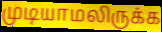
முடியாமலிருக்க